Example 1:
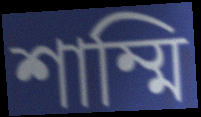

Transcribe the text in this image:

শাম্মি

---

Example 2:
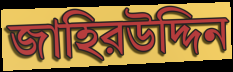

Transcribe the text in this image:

জাহিরউদ্দিন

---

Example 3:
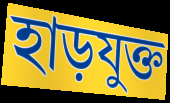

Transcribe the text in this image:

হাড়যুক্ত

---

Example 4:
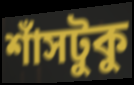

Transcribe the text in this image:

শাঁসটুকু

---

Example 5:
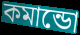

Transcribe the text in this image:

কমান্ডো